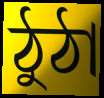
ঠুঠা